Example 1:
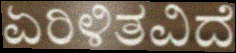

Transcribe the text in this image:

ಏರಿಳಿತವಿದೆ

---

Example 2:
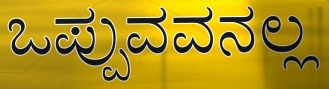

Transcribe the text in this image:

ಒಪ್ಪುವವನಲ್ಲ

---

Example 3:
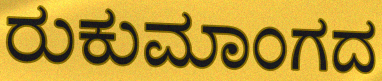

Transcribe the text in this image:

ರುಕುಮಾಂಗದ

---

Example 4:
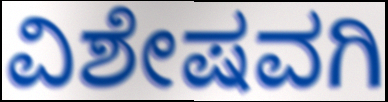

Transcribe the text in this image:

ವಿಶೇಷವಗಿ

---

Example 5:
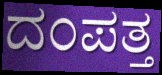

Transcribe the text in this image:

ದಂಪತ್ತ